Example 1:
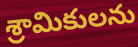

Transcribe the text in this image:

శ్రామికులను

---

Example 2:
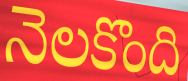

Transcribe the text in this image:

నెలకొంది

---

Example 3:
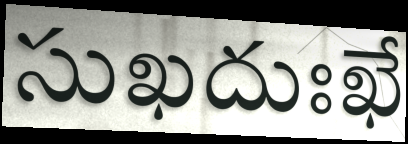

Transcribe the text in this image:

సుఖదుఃఖే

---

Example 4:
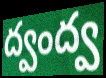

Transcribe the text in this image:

ద్వంద్వ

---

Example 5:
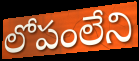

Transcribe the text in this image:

లోపంలేని